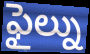
ఫైల్ను